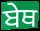
ਬੇਥ